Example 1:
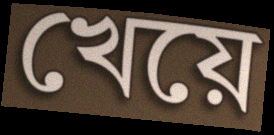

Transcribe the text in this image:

খেয়ে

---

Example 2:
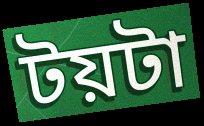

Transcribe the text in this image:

টয়টা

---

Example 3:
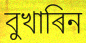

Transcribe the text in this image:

বুখাৰিন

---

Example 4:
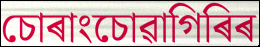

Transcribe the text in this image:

চোৰাংচোৱাগিৰিৰ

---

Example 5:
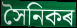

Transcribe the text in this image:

সৈনিকৰ